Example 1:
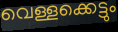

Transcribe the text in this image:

വെള്ളക്കെട്ടും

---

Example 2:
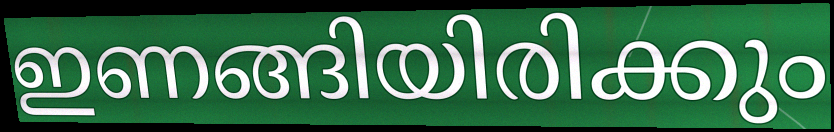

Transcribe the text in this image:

ഇണങ്ങിയിരിക്കും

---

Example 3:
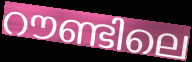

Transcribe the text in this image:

റൗണ്ടിലെ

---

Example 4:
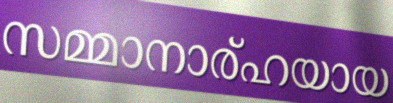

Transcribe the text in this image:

സമ്മാനാര്ഹയായ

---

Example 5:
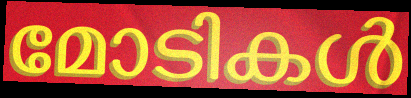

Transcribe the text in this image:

മോടികൾ